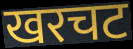
खरचट